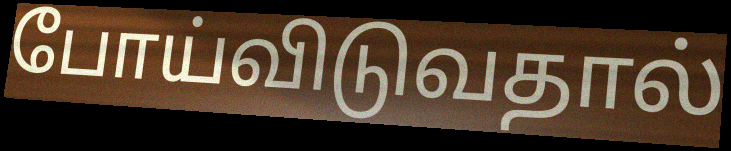
போய்விடுவதால்